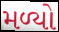
મળ્યો